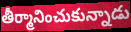
తీర్మానించుకున్నాడు